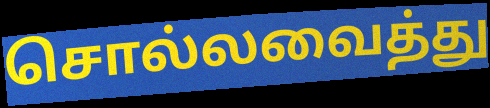
சொல்லவைத்து